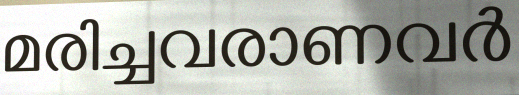
മരിച്ചവരാണവർ